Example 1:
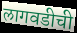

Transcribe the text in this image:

लागवडीची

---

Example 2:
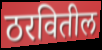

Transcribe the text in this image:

ठरवितील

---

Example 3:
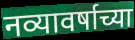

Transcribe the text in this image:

नव्यावर्षाच्या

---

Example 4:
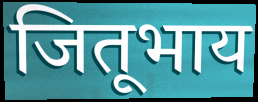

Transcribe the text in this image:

जितूभाय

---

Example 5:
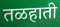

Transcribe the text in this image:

तळहाती